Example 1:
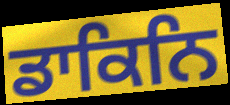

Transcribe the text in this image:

ਡਾਕਿਨਿ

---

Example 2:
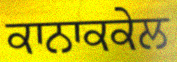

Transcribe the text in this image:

ਕਾਨਾਕਕੇਲ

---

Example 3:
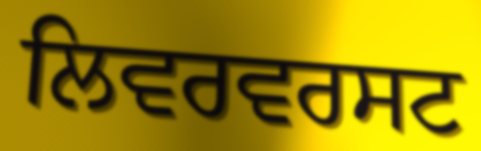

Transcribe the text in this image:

ਲਿਵਰਵਰਸਟ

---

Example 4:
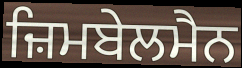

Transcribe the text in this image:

ਜ਼ਿਮਬੇਲਮੈਨ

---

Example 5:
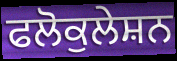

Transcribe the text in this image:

ਫਲੋਕੁਲੇਸ਼ਨ